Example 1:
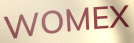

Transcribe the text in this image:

WOMEX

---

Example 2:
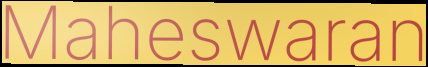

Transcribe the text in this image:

Maheswaran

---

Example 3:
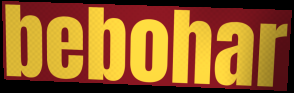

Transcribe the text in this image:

bebohar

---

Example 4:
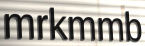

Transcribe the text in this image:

mrkmmb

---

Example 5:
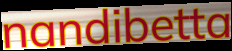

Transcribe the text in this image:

nandibetta